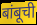
बांबूची